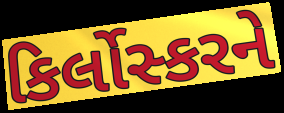
કિર્લોસ્કરને